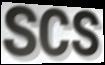
SCS